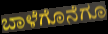
ಬಾಳೆಗೊನೆಗೂ